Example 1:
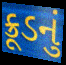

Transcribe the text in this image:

ક્રૂડનું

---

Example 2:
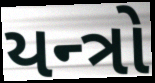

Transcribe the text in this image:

યન્ત્રો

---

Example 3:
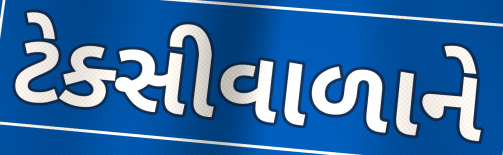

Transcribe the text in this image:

ટેક્સીવાળાને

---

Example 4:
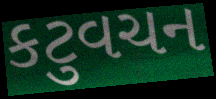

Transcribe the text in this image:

કટુવચન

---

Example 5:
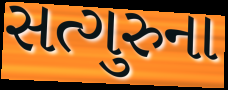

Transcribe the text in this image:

સત્ગુરુના